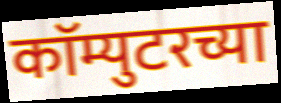
कॉम्युटरच्या